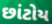
છાંટોય